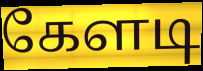
கேளடி